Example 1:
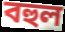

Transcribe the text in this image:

বহুল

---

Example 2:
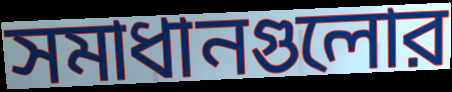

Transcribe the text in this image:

সমাধানগুলোর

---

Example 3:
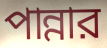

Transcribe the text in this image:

পান্নার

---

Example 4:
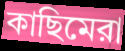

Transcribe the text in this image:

কাছিমেরা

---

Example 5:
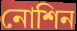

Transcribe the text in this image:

নোশিন